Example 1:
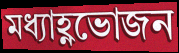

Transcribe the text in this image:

মধ্যাহ্ণভোজন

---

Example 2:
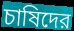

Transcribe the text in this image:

চাষিদের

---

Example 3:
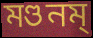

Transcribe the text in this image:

মণ্ডনম্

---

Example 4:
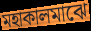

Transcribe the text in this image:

মহাকালমাঝে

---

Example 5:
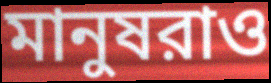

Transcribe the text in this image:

মানুষরাও